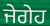
ਜੇਗੇਹ